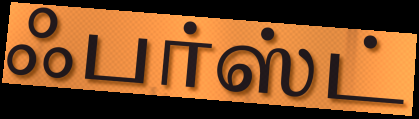
ஃபர்ஸ்ட்